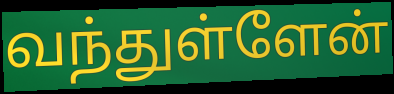
வந்துள்ளேன்